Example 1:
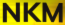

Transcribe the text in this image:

NKM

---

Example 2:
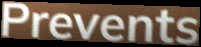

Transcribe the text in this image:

Prevents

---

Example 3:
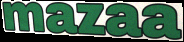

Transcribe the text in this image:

mazaa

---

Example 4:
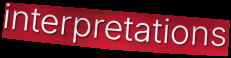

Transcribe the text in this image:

interpretations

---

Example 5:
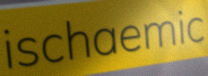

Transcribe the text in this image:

ischaemic